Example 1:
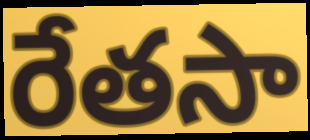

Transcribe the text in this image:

రేతసా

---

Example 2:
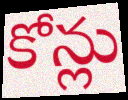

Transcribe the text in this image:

కోన్లు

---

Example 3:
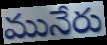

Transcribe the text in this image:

మునేరు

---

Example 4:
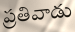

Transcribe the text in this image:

ప్రతివాడు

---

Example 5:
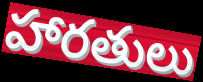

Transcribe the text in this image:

హారతులు